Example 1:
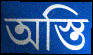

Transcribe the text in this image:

অস্তি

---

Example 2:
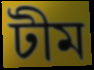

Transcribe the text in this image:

টীম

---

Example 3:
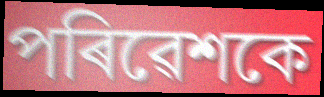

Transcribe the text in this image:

পৰিৱেশকে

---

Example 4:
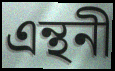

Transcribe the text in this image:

এন্থনী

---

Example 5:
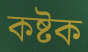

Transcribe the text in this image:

কষ্টক